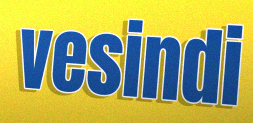
vesindi